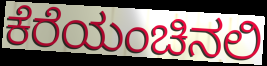
ಕೆರೆಯಂಚಿನಲಿ